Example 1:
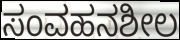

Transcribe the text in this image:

ಸಂವಹನಶೀಲ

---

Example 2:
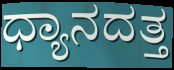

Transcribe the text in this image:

ಧ್ಯಾನದತ್ತ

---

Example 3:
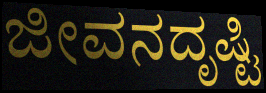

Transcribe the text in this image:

ಜೀವನದೃಷ್ಟಿ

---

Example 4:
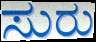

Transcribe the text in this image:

ಸುರು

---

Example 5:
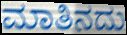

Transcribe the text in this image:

ಮಾತಿನದು